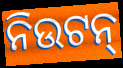
ନିଉଟନ୍